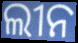
ଲୀନ